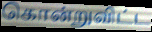
கொன்றுவிட்ட